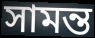
সামন্ত